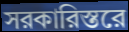
সরকারিস্তরে